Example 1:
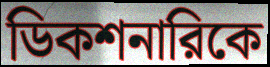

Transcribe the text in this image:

ডিকশনারিকে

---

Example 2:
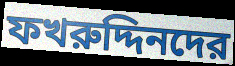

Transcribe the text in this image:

ফখরুদ্দিনদের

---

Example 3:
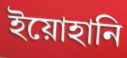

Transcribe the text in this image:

ইয়োহানি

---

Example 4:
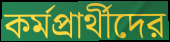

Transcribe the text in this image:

কর্মপ্রার্থীদের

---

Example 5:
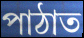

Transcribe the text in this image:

পাঠাত